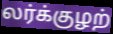
லர்க்குழற்